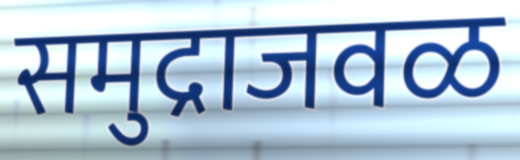
समुद्राजवळ